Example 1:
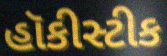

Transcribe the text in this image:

હૉકીસ્ટીક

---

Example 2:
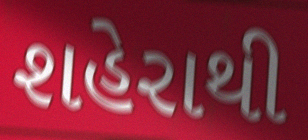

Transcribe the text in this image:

શહેરાથી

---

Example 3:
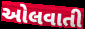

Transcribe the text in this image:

ઓલવાતી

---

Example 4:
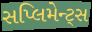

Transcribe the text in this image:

સપ્લિમેન્ટ્સ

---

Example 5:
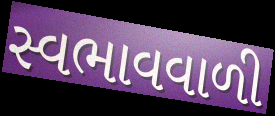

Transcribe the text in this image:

સ્વભાવવાળી